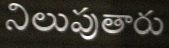
నిలుపుతారు